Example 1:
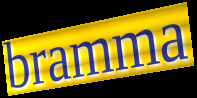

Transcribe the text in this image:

bramma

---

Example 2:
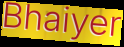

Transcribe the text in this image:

Bhaiyer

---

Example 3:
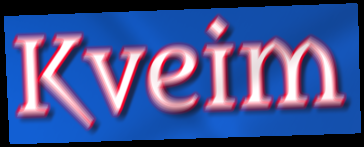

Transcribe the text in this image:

Kveim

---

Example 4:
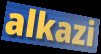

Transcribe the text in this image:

alkazi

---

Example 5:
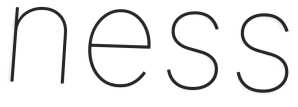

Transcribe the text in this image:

ness